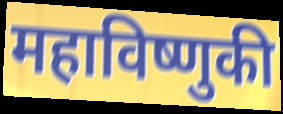
महाविष्णुकी